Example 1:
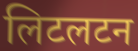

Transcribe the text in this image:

लिटलटन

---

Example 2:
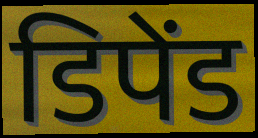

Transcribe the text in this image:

डिपेंड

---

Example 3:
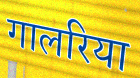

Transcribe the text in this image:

गालरिया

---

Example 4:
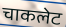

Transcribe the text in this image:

चाकलेट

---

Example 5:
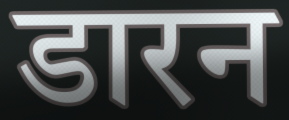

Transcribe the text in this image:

डारन